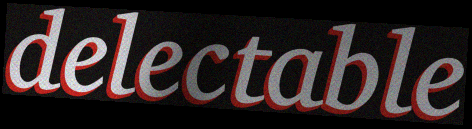
delectable